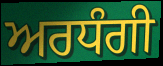
ਅਰਧੰਗੀ